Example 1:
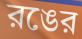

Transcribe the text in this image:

রঙের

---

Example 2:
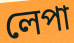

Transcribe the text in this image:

লেপা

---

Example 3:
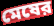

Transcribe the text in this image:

মেষের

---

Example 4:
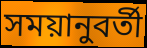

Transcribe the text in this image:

সময়ানুবর্তী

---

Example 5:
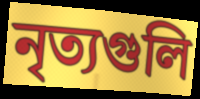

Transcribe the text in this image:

নৃত্যগুলি